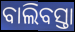
ବାଲିବସ୍ତା